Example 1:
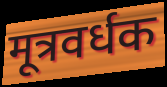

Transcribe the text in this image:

मूत्रवर्धक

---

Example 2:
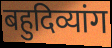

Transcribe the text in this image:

बहुदिव्यांग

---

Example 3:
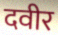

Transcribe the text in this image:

दवीर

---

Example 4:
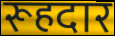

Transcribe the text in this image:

रूहदार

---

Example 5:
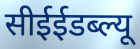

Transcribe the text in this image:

सीईईडब्ल्यू